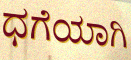
ಧಗೆಯಾಗಿ